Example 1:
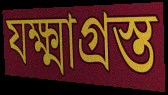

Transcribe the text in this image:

যক্ষ্মাগ্রস্ত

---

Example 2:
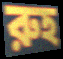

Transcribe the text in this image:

রুহ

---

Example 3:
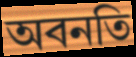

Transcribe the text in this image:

অবনতি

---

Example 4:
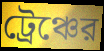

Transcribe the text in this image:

ট্রেঞ্চের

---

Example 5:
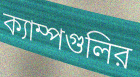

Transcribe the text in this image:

ক্যাম্পগুলির